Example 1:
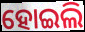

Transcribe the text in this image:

ହୋଇଲି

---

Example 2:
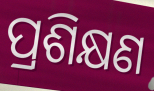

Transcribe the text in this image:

ପ୍ରଶିକ୍ଷଣ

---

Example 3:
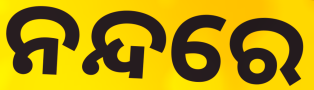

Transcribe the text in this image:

ନନ୍ଦରେ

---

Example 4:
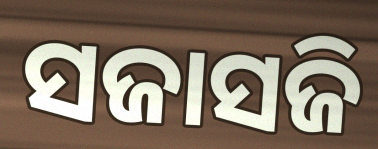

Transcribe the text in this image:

ସଜାସଜି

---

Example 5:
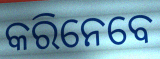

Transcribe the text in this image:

କରିନେବେ